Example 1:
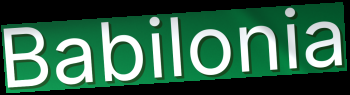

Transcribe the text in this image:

Babilonia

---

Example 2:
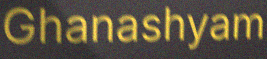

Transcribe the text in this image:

Ghanashyam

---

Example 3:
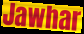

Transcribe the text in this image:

Jawhar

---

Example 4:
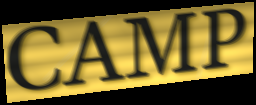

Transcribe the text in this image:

CAMP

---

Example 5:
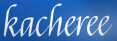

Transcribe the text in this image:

kacheree